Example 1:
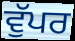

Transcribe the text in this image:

ਵੁੱਪਰ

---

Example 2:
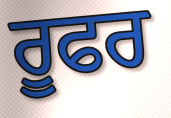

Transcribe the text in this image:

ਰੂਫਰ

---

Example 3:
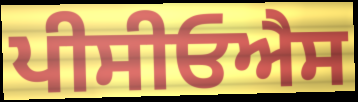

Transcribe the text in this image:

ਪੀਸੀਓਐਸ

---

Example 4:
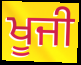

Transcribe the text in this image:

ਖੂਜੀ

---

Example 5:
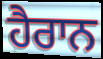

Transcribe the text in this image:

ਹੈਰਾਨ